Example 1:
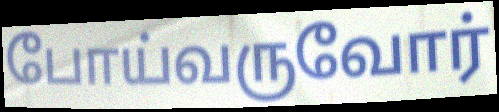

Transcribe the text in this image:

போய்வருவோர்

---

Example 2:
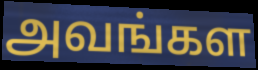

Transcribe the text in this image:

அவங்கள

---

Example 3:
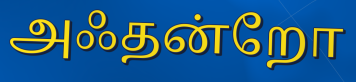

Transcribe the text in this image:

அஃதன்றோ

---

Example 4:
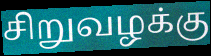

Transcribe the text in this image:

சிறுவழக்கு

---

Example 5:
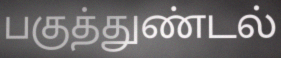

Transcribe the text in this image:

பகுத்துண்டல்